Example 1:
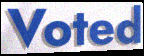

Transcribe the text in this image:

Voted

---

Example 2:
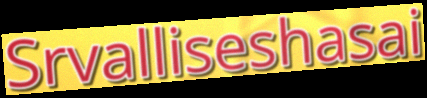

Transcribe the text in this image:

Srvalliseshasai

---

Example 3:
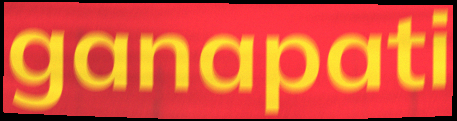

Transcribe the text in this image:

ganapati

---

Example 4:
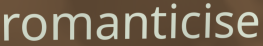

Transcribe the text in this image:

romanticise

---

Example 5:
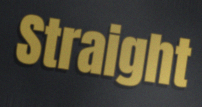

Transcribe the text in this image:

Straight